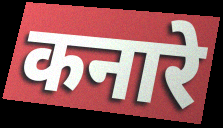
कनारे